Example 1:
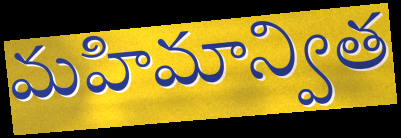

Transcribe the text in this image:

మహిమాన్విత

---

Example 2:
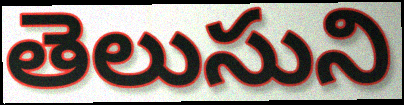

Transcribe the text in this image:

తెలుసుని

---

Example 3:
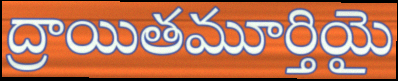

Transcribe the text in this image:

ద్రాయితమూర్తియై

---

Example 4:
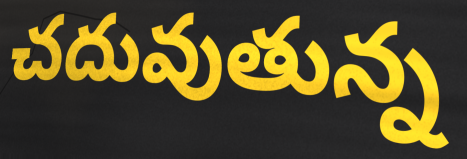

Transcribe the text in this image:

చదువుతున్న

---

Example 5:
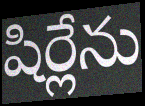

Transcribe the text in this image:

షిర్లేను